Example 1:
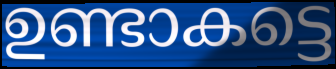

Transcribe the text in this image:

ഉണ്ടാകട്ടെ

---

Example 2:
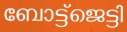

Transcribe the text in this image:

ബോട്ട്ജെട്ടി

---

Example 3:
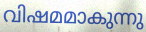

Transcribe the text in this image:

വിഷമമാകുന്നു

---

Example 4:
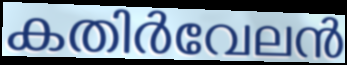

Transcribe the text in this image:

കതിർവേലൻ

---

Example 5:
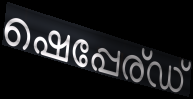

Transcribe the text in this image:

ഷെപ്പേര്ഡ്